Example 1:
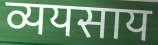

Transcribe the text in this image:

व्ययसाय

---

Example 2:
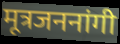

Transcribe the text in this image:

मूत्रजननांगी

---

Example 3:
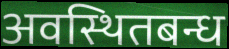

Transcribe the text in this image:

अवस्थितबन्ध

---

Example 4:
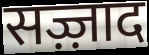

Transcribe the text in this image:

सज़्ज़ाद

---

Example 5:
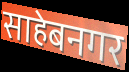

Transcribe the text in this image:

साहेबनगर